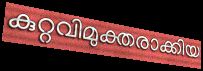
കുറ്റവിമുക്തരാക്കിയ